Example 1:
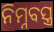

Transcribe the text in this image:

ନିମ୍ନବସ୍ତ୍ର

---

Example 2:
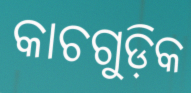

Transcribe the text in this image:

କାଚଗୁଡ଼ିକ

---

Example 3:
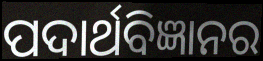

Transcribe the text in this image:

ପଦାର୍ଥବିଜ୍ଞାନର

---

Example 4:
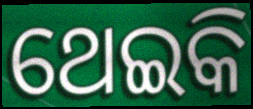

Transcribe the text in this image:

ଥେଇକି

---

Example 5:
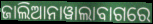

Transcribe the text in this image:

ଜାଲିଆନାୱାଲାବାଗରେ